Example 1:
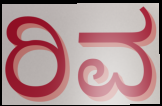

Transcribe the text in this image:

ರಿವ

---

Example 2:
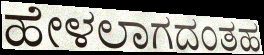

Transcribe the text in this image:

ಹೇಳಲಾಗದಂತಹ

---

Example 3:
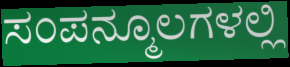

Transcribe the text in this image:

ಸಂಪನ್ಮೂಲಗಳಲ್ಲಿ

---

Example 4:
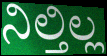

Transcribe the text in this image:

ನಿಲ್ತಿಲ್ಲ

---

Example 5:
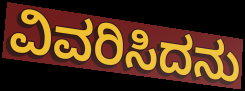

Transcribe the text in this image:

ವಿವರಿಸಿದನು